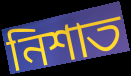
নিশাত